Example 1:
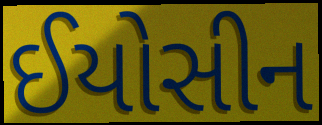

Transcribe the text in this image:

ઈયોસીન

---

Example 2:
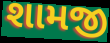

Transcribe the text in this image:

શામજી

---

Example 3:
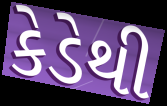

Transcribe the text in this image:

કેડેથી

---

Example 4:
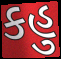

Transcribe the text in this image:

કહુ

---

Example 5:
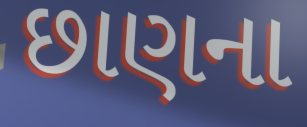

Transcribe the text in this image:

છાણના